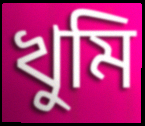
খুমি